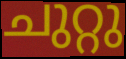
ചുറ്റു